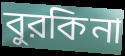
বুরকিনা